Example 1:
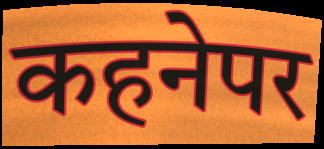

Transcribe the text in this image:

कहनेपर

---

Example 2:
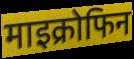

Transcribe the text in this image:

माइक्रोफिन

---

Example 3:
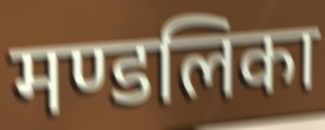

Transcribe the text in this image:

मण्डलिका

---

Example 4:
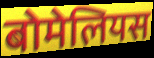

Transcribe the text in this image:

बोमेलियस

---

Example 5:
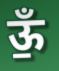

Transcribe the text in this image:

ऊँ॒